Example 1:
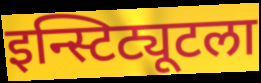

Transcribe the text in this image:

इन्स्टिट्यूटला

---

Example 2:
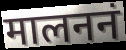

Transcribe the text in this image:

मालननं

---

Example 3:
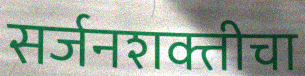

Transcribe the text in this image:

सर्जनशक्तीचा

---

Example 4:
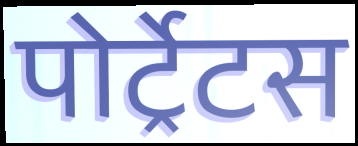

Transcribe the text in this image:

पोर्ट्रेटस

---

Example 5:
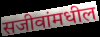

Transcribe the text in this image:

सजीवांमधील